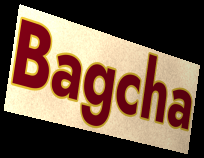
Bagcha